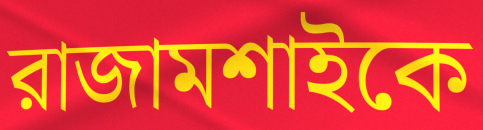
রাজামশাইকে